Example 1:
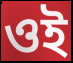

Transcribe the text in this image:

ওই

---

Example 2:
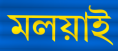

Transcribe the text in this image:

মলয়াই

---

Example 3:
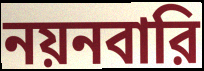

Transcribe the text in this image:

নয়নবারি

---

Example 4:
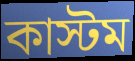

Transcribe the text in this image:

কাস্টম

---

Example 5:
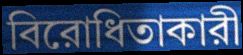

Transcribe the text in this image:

বিরোধিতাকারী